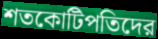
শতকোটিপতিদের